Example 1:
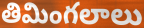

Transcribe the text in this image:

తిమింగలాలు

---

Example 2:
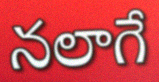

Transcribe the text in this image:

నలాగే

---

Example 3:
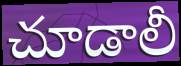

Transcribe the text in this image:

చూడాలీ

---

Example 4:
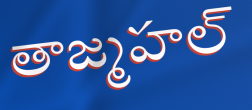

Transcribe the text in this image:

తాజ్మహల్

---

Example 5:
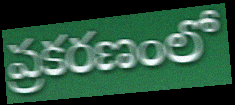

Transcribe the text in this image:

ప్రకరణంలో